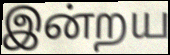
இன்றய